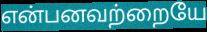
என்பனவற்றையே